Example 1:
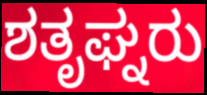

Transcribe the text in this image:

ಶತೃಘ್ನರು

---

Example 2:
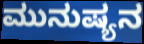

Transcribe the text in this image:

ಮುನುಷ್ಯನ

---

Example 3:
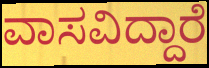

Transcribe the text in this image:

ವಾಸವಿದ್ದಾರೆ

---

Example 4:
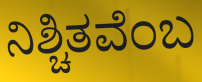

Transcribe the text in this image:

ನಿಶ್ಚಿತವೆಂಬ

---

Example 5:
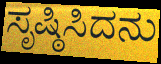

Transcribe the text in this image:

ಸೃಷ್ಠಿಸಿದನು